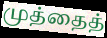
முத்தைத்